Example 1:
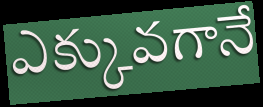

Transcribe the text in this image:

ఎక్కువగానే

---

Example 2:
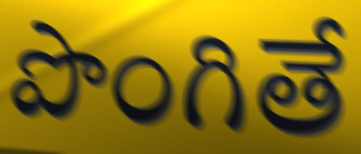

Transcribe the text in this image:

పొంగితే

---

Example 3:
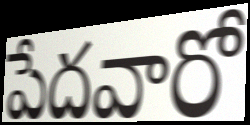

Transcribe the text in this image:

పేదవారో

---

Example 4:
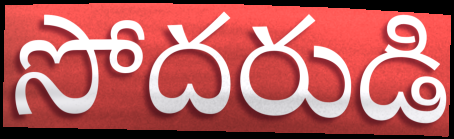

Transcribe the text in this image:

సోదరుడి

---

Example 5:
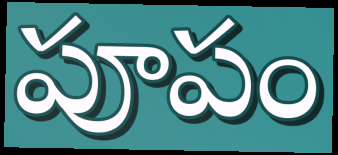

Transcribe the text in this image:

పూపం